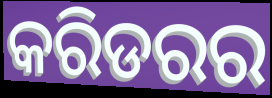
କରିଡରର